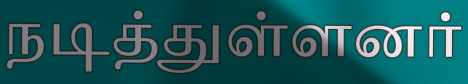
நடித்துள்ளனர்